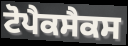
ਟੋਪੈਕਸੈਕਸ